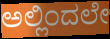
ಅಲ್ಲಿಂದಲೇ